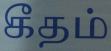
கீதம்